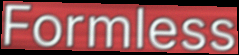
Formless